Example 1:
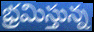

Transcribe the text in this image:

భ్రమిస్తున్న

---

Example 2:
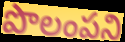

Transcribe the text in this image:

పొలంపని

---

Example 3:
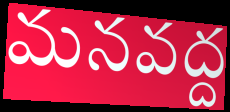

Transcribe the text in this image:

మనవద్ద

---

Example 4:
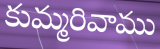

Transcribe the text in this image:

కుమ్మరివాము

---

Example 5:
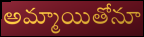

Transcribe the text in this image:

అమ్మాయితోనూ